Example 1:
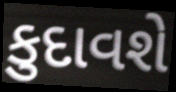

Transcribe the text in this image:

કુદાવશે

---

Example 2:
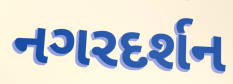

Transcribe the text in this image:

નગરદર્શન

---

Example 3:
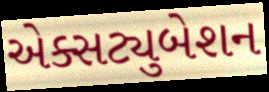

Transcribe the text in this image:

એક્સટ્યુબેશન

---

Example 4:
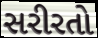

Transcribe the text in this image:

સરીરતો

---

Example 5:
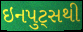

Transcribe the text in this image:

ઇનપુટ્સથી